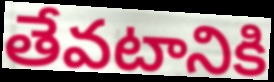
తేవటానికి